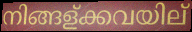
നിങ്ങള്ക്കവയില്